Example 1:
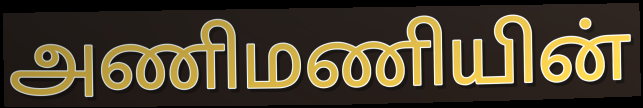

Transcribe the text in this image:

அணிமணியின்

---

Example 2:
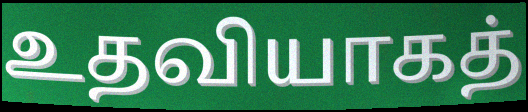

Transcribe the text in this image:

உதவியாகத்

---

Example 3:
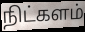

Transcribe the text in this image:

நிட்களம்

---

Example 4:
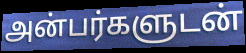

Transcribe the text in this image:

அன்பர்களுடன்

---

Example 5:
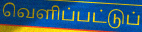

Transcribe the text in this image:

வெளிப்பட்டுப்